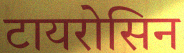
टायरोसिन